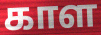
காள